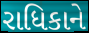
રાધિકાને